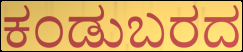
ಕಂಡುಬರದ